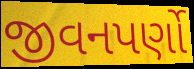
જીવનપર્ણો